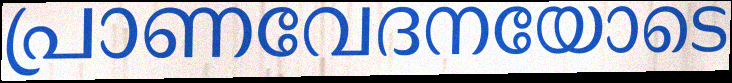
പ്രാണവേദനയോടെ